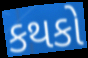
કથકો